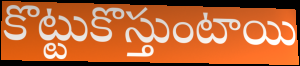
కొట్టుకొస్తుంటాయి